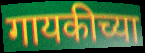
गायकीच्या